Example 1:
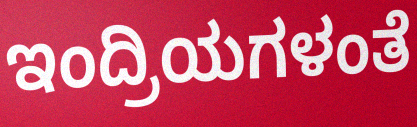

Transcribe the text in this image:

ಇಂದ್ರಿಯಗಳಂತೆ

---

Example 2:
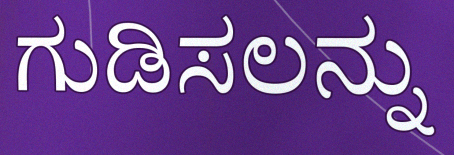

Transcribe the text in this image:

ಗುಡಿಸಲನ್ನು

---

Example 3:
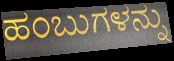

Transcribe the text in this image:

ಹಂಬುಗಳನ್ನು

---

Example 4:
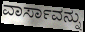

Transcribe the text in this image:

ವಾರ್ಸಾವನ್ನು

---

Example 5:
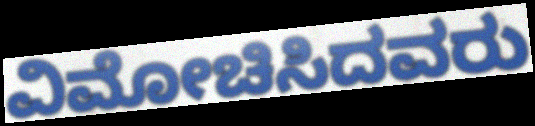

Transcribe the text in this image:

ವಿಮೋಚಿಸಿದವರು